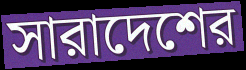
সারাদেশের